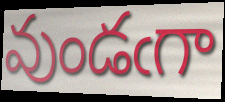
వుండఁగా